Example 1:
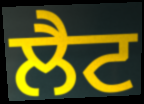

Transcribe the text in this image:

ਲੈਟ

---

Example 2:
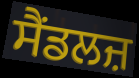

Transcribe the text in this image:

ਸੈਂਡਲਜ਼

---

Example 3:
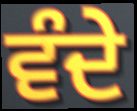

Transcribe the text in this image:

ਵੰਦੇ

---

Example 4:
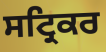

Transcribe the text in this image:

ਸਟ੍ਰਿਕਰ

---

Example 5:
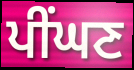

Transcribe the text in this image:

ਪੀਂਘਣ